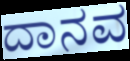
ದಾನವ